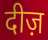
दीज़